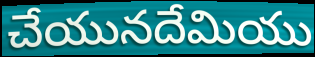
చేయునదేమియు